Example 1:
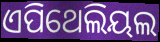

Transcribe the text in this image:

ଏପିଥେଲିୟଲ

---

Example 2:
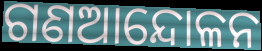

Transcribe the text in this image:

ଗଣଆନ୍ଦୋଳନ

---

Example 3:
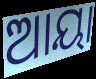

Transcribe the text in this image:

ଆୟା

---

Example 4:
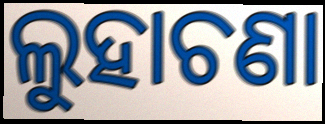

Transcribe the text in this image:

ଲୁହାଚଣା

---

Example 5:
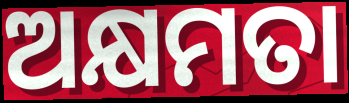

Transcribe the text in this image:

ଅକ୍ଷମତା